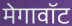
मेगावॉट